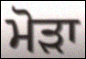
ਮੋੜਾ